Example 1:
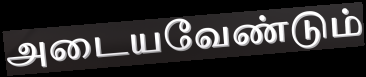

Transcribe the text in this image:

அடையவேண்டும்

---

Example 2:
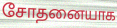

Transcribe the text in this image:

சோதனையாக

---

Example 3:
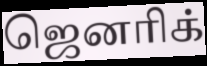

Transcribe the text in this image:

ஜெனரிக்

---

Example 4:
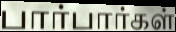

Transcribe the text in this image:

பார்பார்கள்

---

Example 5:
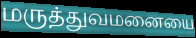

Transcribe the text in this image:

மருத்துவமனையை